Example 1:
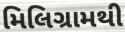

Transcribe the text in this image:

મિલિગ્રામથી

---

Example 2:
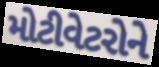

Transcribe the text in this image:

મોટીવેટરોને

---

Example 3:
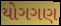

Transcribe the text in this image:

યોગગણ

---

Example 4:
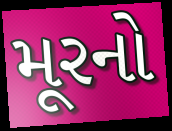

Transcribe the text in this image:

મૂરનો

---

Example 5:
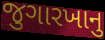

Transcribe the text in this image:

જુગારખાનુ